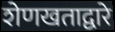
शेणखताद्वारे